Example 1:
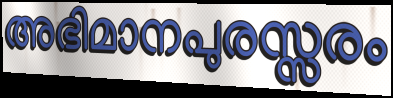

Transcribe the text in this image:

അഭിമാനപുരസ്സരം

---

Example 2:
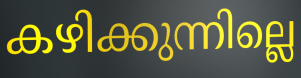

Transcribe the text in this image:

കഴിക്കുന്നില്ലെ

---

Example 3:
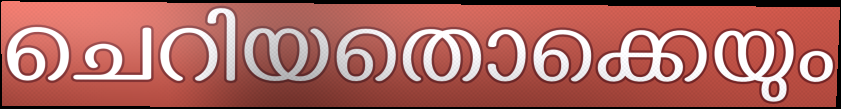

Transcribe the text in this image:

ചെറിയതൊക്കെയും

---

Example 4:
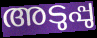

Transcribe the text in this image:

അടുപ്പു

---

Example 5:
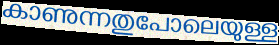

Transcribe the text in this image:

കാണുന്നതുപോലെയുള്ള